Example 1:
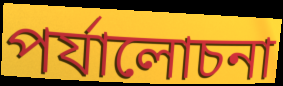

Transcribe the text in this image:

পৰ্যালোচনা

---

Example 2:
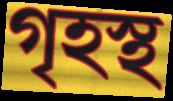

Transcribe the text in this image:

গৃহস্থ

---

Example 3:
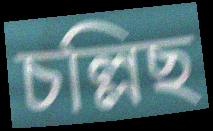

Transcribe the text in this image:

চল্লিছ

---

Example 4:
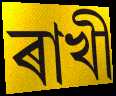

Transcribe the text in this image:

ৰাখী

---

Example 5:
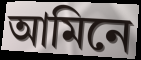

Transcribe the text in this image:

আমিনে